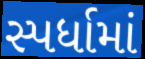
સ્પર્ધામાં